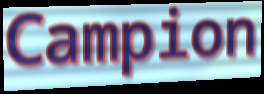
Campion